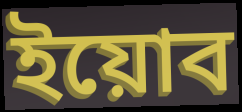
ইয়োব